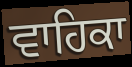
ਵਾਹਿਕਾ